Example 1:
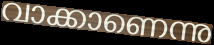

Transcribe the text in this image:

വാക്കാണെന്നു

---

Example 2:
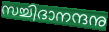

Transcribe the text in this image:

സച്ചിദാനന്ദനു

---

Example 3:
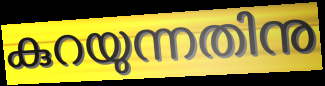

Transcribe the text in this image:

കുറയുന്നതിനു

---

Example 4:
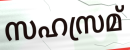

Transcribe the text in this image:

സഹസ്രമ്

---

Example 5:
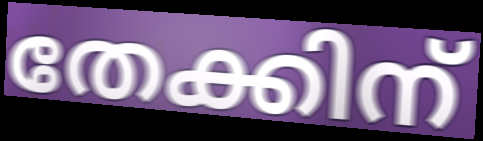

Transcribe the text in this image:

തേക്കിന്